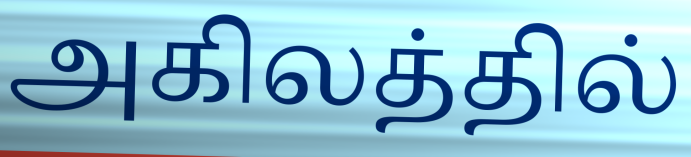
அகிலத்தில்